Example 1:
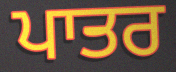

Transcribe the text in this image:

ਪਾਤਰ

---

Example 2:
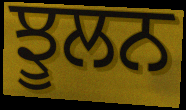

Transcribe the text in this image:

ਝੂਲਨ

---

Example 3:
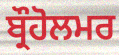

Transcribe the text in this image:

ਬ੍ਰੌਹੋਲਮਰ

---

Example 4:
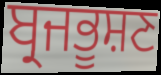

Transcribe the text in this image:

ਬ੍ਰਜਭੂਸ਼ਣ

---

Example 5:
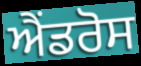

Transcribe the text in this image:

ਐਂਡਰੋਸ